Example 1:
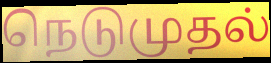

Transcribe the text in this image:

நெடுமுதல்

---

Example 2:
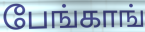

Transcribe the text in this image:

பேங்காங்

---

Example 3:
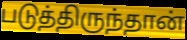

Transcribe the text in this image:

படுத்திருந்தான்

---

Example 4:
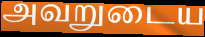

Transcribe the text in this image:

அவறுடைய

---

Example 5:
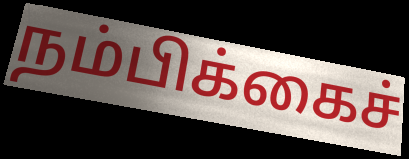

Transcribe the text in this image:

நம்பிக்கைச்